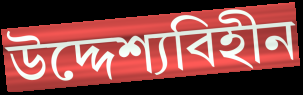
উদ্দেশ্যবিহীন